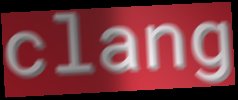
clang